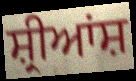
ਸ਼੍ਰੀਆਂਸ਼